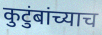
कुटुंबांच्याच